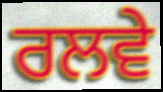
ਰਲਵੇ